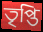
তৃপ্তি